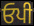
ਓਪੀ